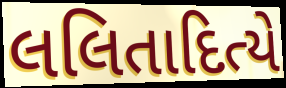
લલિતાદિત્યે